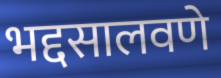
भद्दसालवणे